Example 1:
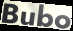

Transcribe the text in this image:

Bubo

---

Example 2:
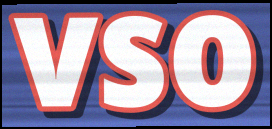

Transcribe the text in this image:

vso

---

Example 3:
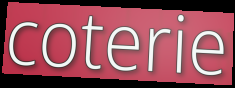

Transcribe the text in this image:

coterie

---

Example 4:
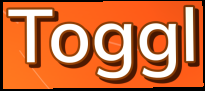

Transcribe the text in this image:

Toggl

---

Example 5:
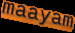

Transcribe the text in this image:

maayam